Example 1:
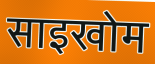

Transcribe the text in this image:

साइखोम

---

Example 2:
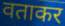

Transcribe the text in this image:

वताकर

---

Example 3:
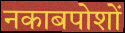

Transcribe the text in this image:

नकाबपोशों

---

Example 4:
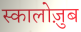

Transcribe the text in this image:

स्कालोज़ुब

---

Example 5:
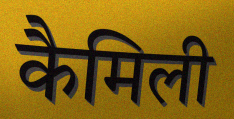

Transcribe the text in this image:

कैमिली